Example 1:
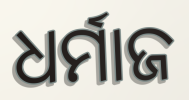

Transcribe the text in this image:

ଧର୍ମାଜ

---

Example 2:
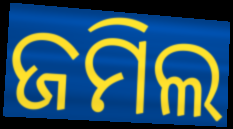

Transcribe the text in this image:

ଜମିଲ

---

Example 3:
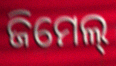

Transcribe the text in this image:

ଜିମେଲ୍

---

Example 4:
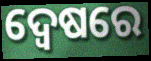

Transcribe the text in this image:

ଦ୍ୱେଷରେ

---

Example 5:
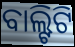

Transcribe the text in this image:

ବାଲ୍ଟିଟି